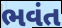
ભવંત